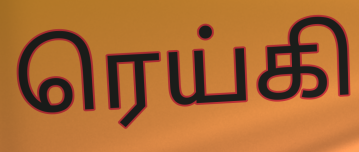
ரெய்கி